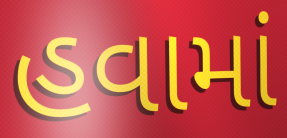
હવામાં